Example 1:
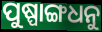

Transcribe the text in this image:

ପୁଷ୍ପାଙ୍ଗଧନୁ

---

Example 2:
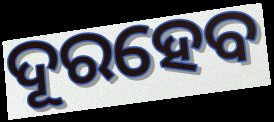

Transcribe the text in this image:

ଦୂରହେବ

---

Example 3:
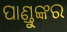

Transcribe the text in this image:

ପାଣ୍ଡୁଙ୍କର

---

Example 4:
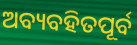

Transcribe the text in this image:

ଅବ୍ୟବହିତପୂର୍ବ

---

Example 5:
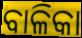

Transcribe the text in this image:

ବାଳିକା